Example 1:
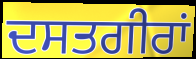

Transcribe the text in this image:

ਦਸਤਗੀਰਾਂ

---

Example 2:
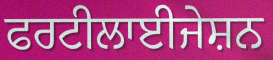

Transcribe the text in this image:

ਫਰਟੀਲਾਈਜੇਸ਼ਨ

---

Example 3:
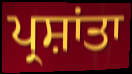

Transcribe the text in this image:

ਪ੍ਰਸ਼ਾਂਤਾ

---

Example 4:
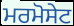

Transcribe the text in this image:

ਮਰਮੋਸੇਟ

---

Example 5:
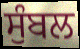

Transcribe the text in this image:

ਸੁੰਬਲ